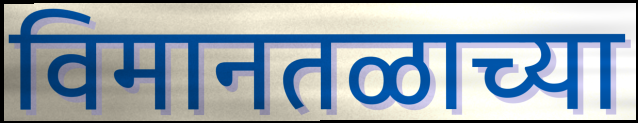
विमानतळाच्या